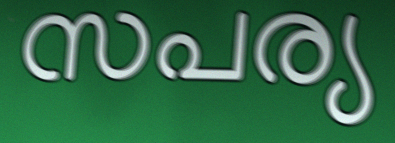
സപര്യ